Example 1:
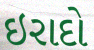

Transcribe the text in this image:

ઇરાદો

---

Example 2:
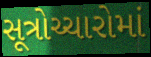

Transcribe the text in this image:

સૂત્રોચ્ચારોમાં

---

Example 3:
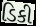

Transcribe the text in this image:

ડિકી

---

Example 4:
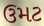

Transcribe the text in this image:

ઉમટ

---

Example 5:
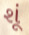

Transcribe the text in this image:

શૂં